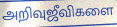
அறிவுஜீவிகளை